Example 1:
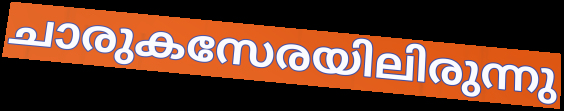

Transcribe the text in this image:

ചാരുകസേരയിലിരുന്നു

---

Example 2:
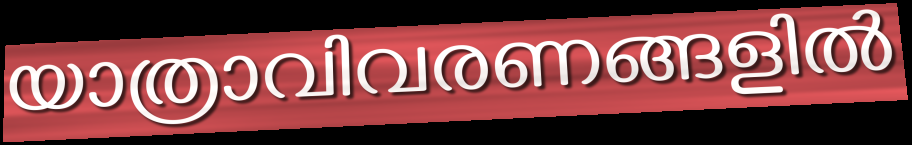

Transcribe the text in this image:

യാത്രാവിവരണങ്ങളിൽ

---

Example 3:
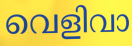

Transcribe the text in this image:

വെളിവാ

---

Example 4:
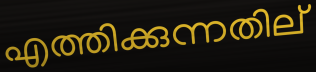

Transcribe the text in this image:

എത്തിക്കുന്നതില്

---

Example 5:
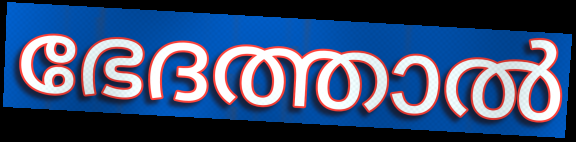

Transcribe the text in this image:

ഭേദത്താൽ